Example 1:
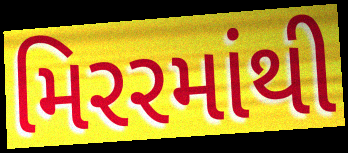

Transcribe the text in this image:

મિરરમાંથી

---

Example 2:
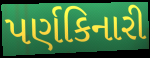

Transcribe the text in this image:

પર્ણકિનારી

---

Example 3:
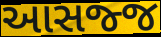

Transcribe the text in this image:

આસજ્જ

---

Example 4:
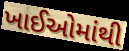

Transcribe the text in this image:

ખાઈઓમાંથી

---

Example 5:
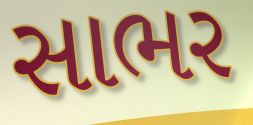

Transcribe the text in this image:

સાભર